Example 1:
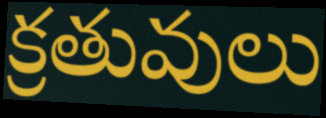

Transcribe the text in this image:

క్రతువులు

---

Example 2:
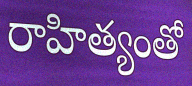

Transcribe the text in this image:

రాహిత్యంతో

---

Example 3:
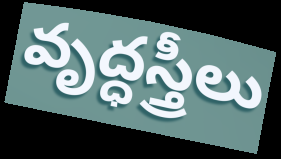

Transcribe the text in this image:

వృద్ధస్త్రీలు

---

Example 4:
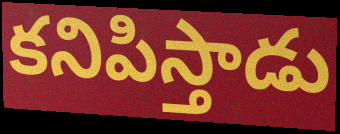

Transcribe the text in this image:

కనిపిస్తాడు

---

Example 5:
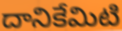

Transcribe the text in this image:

దానికేమిటి